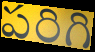
పరిగి